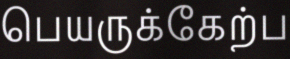
பெயருக்கேற்ப